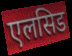
एलसिड